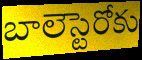
బాలెస్టెరోకు